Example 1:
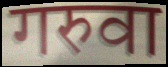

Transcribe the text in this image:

गरुवा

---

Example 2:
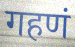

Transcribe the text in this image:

गहणं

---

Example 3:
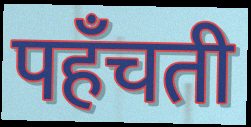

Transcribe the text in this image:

पहँचती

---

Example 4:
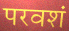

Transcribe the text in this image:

परवशं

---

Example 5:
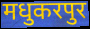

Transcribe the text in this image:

मधुकरपुर